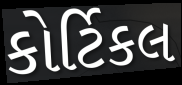
કોર્ટિકલ